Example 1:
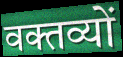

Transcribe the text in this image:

वक्‍तव्‍यों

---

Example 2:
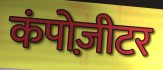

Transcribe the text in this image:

कंपोज़ीटर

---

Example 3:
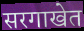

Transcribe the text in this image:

सरगाखेत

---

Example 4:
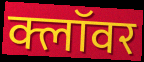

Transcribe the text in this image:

क्लॉवर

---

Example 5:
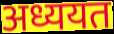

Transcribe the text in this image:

अध्ययत